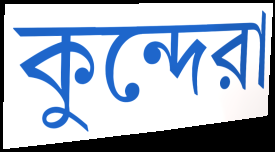
কুন্দেরা